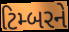
ટિમ્બરને